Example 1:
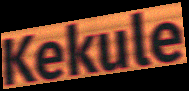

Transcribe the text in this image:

Kekule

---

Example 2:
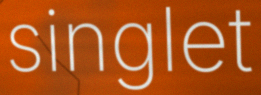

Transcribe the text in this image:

singlet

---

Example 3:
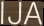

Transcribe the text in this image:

IJA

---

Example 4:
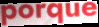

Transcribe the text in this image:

porque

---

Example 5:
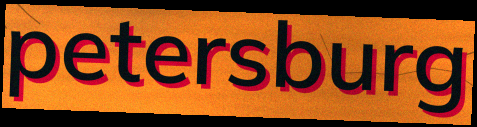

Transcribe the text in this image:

petersburg